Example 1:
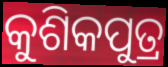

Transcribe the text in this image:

କୁଶିକପୁତ୍ର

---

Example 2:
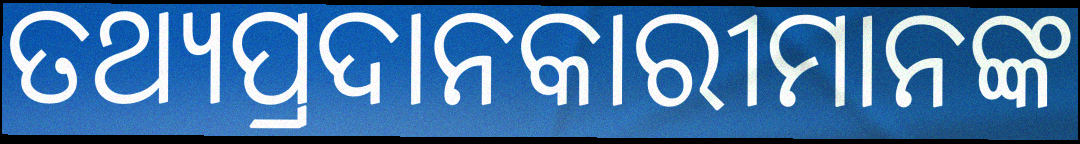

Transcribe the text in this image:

ତଥ୍ୟପ୍ରଦାନକାରୀମାନଙ୍କ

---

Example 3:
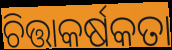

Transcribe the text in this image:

ଚିତ୍ତାକର୍ଷକତା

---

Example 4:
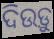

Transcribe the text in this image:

ଦିଉଡ଼ୁ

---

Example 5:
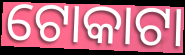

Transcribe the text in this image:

ଟୋକାଟା